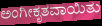
ಅಂಗೀಕೃತವಾಯಿತು